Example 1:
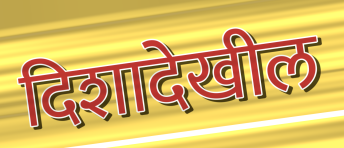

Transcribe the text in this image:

दिशादेखील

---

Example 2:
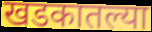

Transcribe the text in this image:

खडकातल्या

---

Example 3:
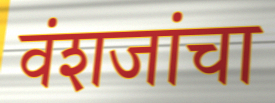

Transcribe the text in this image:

वंशजांचा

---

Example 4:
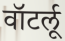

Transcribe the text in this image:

वॉटर्लू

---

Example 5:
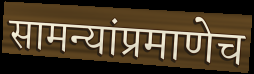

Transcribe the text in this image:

सामन्यांप्रमाणेच